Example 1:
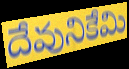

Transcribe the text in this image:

దేవునికేమి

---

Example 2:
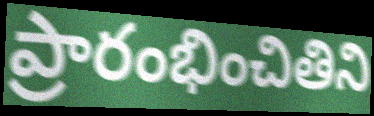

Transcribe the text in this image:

ప్రారంభించితిని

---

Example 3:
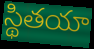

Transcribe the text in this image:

స్థితయా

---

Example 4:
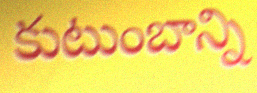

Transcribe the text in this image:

కుటుంబాన్ని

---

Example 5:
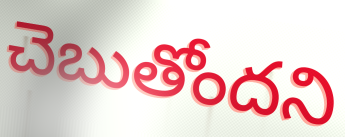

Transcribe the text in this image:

చెబుతోందని